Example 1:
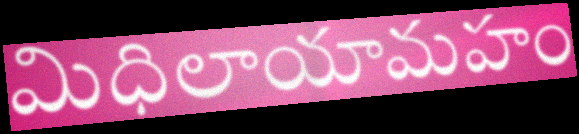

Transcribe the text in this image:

మిధిలాయామహం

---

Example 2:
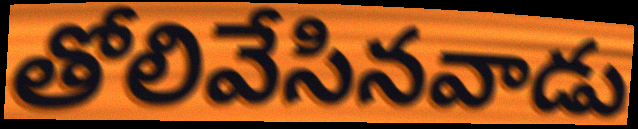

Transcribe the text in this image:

తోలివేసినవాడు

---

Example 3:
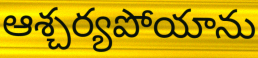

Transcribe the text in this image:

ఆశ్చర్యపోయాను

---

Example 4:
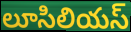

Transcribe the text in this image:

లూసిలియస్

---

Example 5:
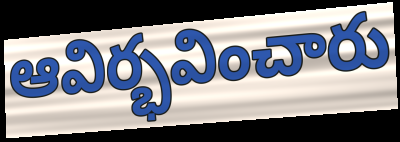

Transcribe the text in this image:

ఆవిర్భవించారు